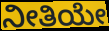
ನೀತಿಯೇ